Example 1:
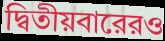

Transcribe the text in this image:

দ্বিতীয়বারেরও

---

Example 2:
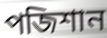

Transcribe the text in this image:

পজিশান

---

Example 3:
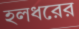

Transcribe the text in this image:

হলধরের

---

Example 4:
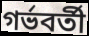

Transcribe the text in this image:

গর্ভবর্তী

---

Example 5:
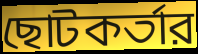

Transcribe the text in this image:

ছোটকর্তার